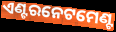
ଏଣ୍ଟରନେଟମେଣ୍ଟ